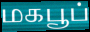
மகபூப்